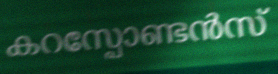
കറസ്പോണ്ടൻസ്